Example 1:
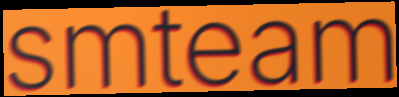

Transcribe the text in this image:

smteam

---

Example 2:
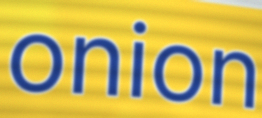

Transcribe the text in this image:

onion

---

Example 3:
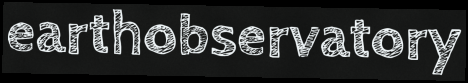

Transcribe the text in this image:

earthobservatory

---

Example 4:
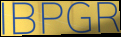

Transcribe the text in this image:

IBPGR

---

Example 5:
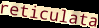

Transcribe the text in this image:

reticulata